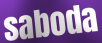
saboda